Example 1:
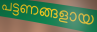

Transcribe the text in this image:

പട്ടണങ്ങളായ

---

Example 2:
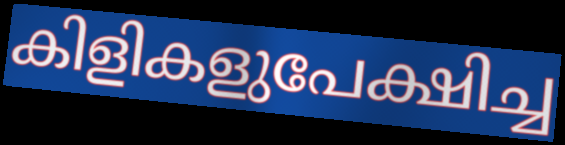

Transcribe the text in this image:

കിളികളുപേക്ഷിച്ച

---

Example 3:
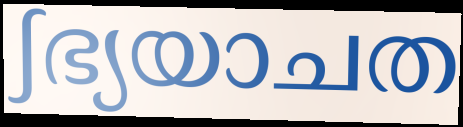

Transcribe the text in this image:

ഽഭ്യയാചത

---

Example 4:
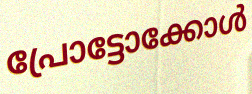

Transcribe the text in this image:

പ്രോട്ടോക്കോൾ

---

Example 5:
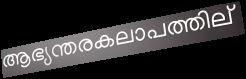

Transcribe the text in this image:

ആഭ്യന്തരകലാപത്തില്